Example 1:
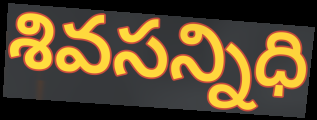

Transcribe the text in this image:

శివసన్నిధి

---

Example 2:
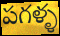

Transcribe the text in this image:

పగళ్ళ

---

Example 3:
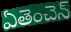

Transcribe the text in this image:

ఏతెంచెన్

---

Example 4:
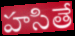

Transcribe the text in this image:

హసితే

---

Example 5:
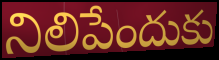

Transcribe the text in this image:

నిలిపేందుకు